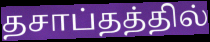
தசாப்தத்தில்